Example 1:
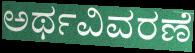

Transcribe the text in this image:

ಅರ್ಥವಿವರಣೆ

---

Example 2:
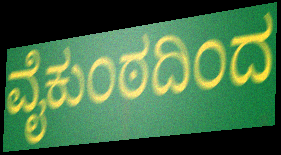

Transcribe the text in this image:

ವೈಕುಂಠದಿಂದ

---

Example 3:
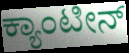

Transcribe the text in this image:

ಕ್ಯಾಂಟೀನ್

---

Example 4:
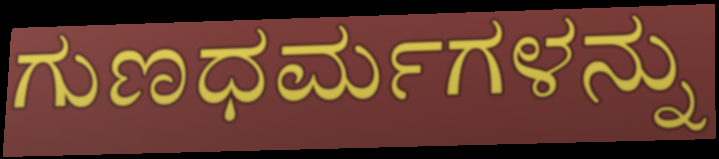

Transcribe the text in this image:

ಗುಣಧರ್ಮಗಳನ್ನು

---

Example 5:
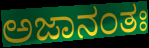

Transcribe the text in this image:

ಅಜಾನಂತಃ